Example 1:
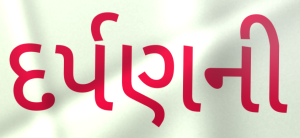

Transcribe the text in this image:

દર્પણની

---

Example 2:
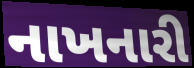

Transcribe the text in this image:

નાખનારી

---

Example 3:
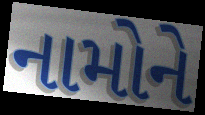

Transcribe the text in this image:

નામોને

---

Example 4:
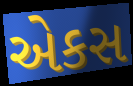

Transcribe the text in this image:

એકસ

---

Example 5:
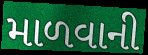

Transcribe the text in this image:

માળવાની